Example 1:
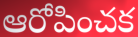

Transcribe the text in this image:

ఆరోపించక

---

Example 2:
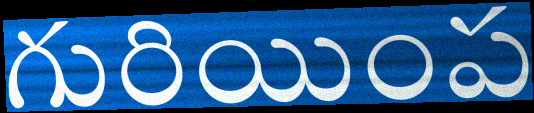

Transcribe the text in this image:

గురియింప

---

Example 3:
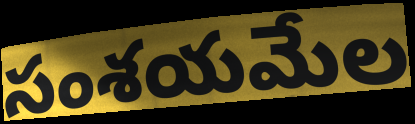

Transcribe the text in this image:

సంశయమేల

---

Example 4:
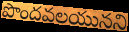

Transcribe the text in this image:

పొందవలయునని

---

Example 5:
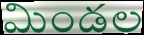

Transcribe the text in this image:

మిండల